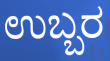
ಉಬ್ಬರ